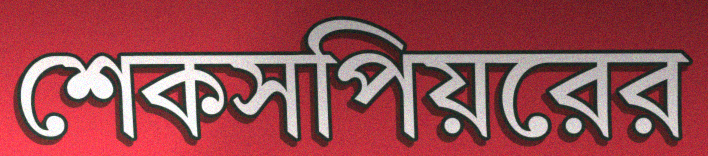
শেকসপিয়রের